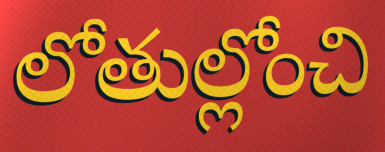
లోతుల్లోంచి